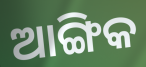
ଆଙ୍ଗିକ